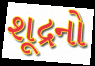
શૂદ્રનો